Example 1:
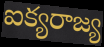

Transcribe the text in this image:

ఐక్యరాజ్య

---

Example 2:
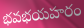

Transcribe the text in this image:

భవభయహరం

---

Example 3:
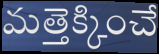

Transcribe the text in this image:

మత్తెక్కించే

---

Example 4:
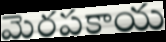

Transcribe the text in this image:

మెరపకాయ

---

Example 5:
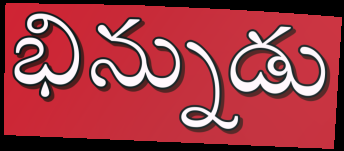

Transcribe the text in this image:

భిన్నుడు